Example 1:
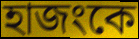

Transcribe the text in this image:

হাজংকে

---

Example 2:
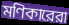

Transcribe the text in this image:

মণিকারেরা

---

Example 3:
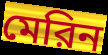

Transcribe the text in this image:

মেরিন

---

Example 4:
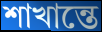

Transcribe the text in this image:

শাখান্তে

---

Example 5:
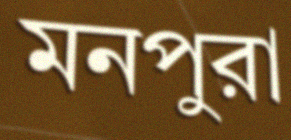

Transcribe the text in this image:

মনপুরা